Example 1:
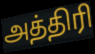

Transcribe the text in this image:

அத்திரி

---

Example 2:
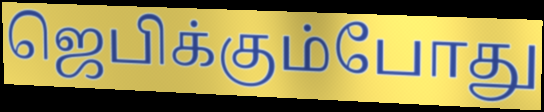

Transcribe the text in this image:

ஜெபிக்கும்போது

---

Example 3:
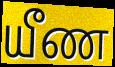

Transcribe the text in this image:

யீண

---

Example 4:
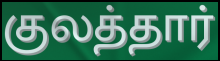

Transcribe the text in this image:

குலத்தார்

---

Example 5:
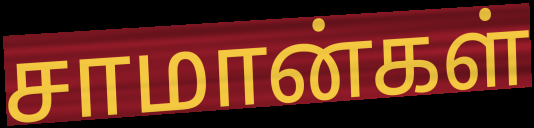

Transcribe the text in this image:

சாமான்கள்